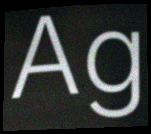
Ag